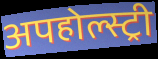
अपहोल्स्ट्री